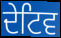
ਦੇਟਿਵ